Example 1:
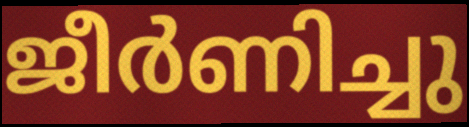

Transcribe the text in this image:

ജീർണിച്ചു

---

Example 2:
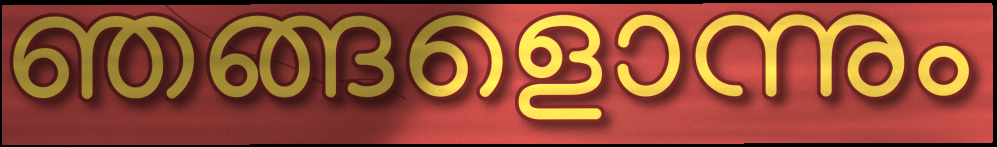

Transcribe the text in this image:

ഞങ്ങളൊന്നും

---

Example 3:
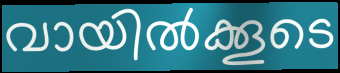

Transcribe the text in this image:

വായിൽക്കൂടെ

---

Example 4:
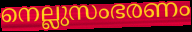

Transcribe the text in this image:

നെല്ലുസംഭരണം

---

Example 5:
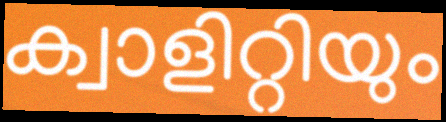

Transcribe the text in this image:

ക്വാളിറ്റിയും